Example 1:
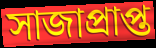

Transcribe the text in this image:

সাজাপ্রাপ্ত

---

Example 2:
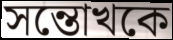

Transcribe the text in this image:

সন্তোখকে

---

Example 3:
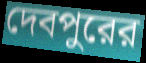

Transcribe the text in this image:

দেবপুরের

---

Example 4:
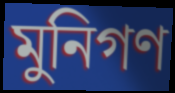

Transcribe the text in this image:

মুনিগণ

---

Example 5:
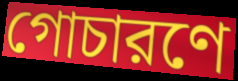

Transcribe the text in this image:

গোচারণে